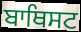
ਬਾਥਿਸਟ